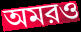
অমরও